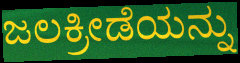
ಜಲಕ್ರೀಡೆಯನ್ನು